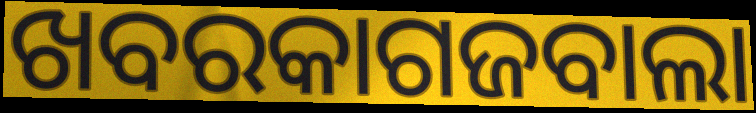
ଖବରକାଗଜବାଲା